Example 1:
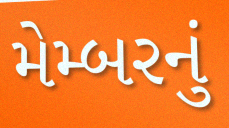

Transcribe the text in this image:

મેમ્બરનું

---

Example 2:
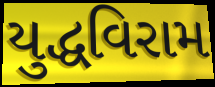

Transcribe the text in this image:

યુદ્ધવિરામ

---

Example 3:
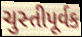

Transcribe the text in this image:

ચુસ્તીપૂર્વક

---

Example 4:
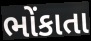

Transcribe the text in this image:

ભોંકાતા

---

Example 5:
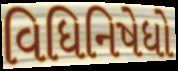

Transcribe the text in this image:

વિધિનિષેધો